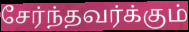
சேர்ந்தவர்க்கும்